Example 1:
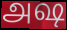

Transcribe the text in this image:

அஷ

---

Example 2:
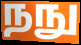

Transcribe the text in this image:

நநு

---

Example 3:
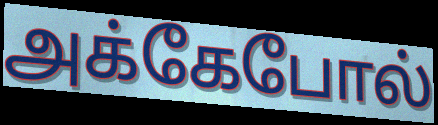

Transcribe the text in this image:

அக்கேபோல்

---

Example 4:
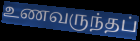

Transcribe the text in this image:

உணவருந்தப்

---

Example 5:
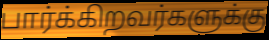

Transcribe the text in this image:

பார்க்கிறவர்களுக்கு